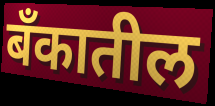
बँकातील